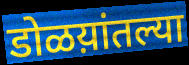
डोळय़ांतल्या